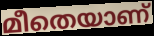
മീതെയാണ്